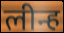
लीन्ह